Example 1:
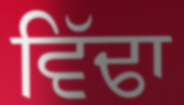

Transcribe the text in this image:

ਵਿੱਢਾ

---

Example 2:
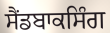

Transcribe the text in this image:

ਸੈਂਡਬਾਕਸਿੰਗ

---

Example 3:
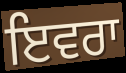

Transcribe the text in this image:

ਇਵਰਾ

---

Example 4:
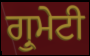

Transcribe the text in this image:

ਗ੍ਰੁਮੇਟੀ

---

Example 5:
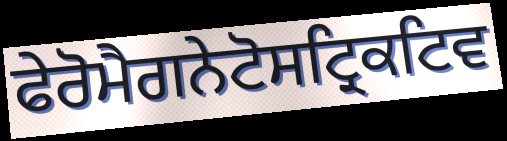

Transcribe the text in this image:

ਫੇਰੋਮੈਗਨੇਟੋਸਟ੍ਰਿਕਟਿਵ